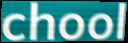
chool